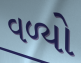
વળ્યો